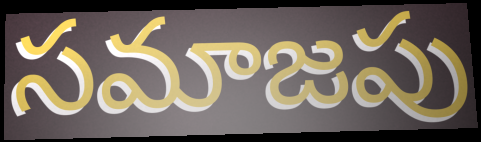
సమాజపు